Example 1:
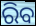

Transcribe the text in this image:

ରିବ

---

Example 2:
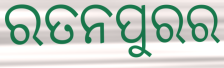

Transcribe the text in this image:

ରତନପୁରର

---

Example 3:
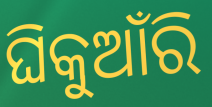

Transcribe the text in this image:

ଘିକୁଆଁରି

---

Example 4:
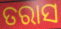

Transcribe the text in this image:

ତରାସ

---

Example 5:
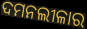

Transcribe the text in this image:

ଦମନଲୀଳାର